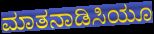
ಮಾತನಾಡಿಸಿಯೂ